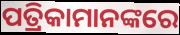
ପତ୍ରିକାମାନଙ୍କରେ